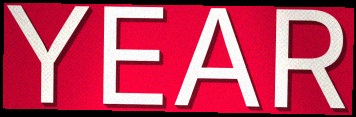
YEAR